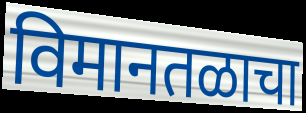
विमानतळाचा